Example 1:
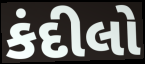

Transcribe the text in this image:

કંદીલો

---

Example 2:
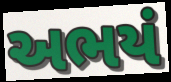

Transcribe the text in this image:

અભયં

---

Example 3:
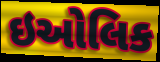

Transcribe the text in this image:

ઇઓલિક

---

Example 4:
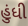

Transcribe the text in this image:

હુંધી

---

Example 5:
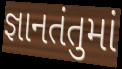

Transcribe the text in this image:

જ્ઞાનતંતુમાં